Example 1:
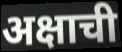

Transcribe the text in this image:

अक्षाची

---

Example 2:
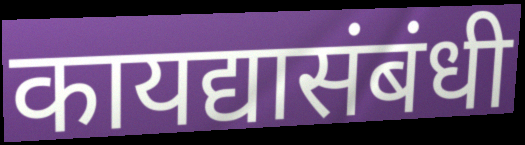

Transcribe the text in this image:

कायद्यासंबंधी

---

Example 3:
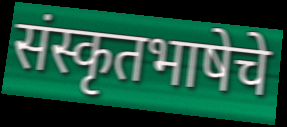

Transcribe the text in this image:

संस्कृतभाषेचे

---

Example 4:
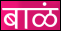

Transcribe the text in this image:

बाळं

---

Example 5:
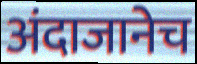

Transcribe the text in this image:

अंदाजानेच